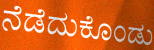
ನೆಡೆದುಕೊಂಡು